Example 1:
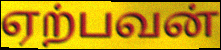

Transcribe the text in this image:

ஏற்பவன்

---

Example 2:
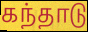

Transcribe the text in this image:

கந்தாடு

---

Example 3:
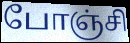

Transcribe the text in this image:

போஞ்சி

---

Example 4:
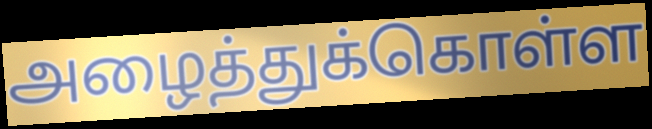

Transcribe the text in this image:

அழைத்துக்கொள்ள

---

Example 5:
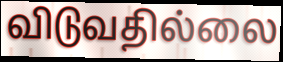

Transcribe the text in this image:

விடுவதில்லை